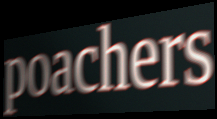
poachers